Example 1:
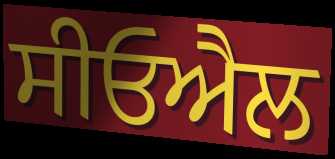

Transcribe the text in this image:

ਸੀਓਐਲ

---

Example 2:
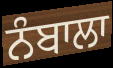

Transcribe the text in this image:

ਨੰਬਾਲਾ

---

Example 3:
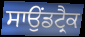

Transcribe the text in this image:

ਸਾਉਂਡਟ੍ਰੈਕ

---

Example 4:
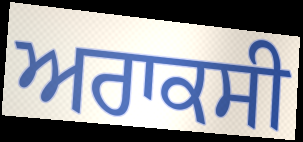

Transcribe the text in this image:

ਅਰਾਕਸੀ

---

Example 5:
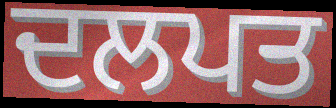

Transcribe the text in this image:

ਦਲਪਤ